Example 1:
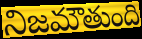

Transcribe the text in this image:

నిజమౌతుంది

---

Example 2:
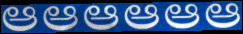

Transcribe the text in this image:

ఆఆఆఆఆఆ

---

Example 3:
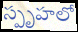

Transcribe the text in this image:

స్పృహలో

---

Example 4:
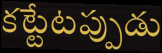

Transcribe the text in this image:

కట్టేటప్పుడు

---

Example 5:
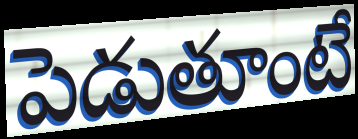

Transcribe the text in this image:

పెడుతూంటే